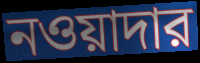
নওয়াদার